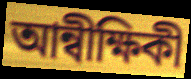
আন্বীক্ষিকী